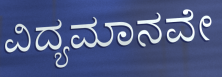
ವಿದ್ಯಮಾನವೇ